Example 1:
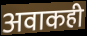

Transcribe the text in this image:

अवाकही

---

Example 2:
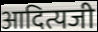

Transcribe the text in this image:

आदित्यजी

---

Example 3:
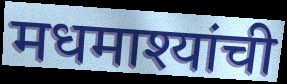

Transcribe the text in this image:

मधमाश्‍यांची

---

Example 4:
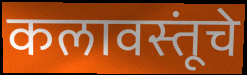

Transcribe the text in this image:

कलावस्तूंचे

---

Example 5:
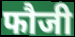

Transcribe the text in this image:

फौजी